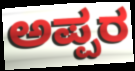
ಅಪ್ಪರ